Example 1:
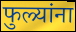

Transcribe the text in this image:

फुल्यांना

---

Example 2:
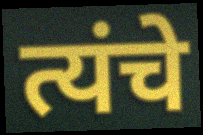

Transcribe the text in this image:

त्यंचे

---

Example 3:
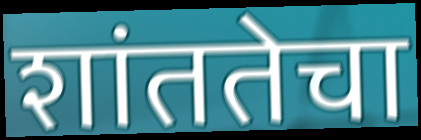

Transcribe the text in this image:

शांततेचा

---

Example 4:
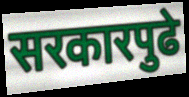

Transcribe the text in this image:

सरकारपुढे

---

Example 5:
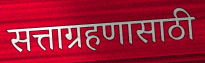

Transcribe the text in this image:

सत्ताग्रहणासाठी